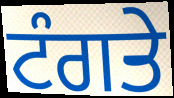
ਟੰਗਤੇ